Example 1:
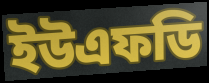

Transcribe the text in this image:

ইউএফডি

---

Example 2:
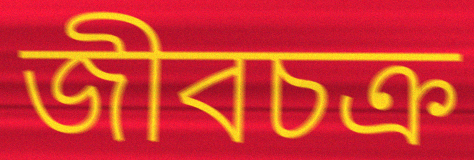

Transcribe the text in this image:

জীবচক্র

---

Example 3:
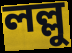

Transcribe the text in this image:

লল্লু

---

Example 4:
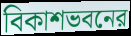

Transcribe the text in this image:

বিকাশভবনের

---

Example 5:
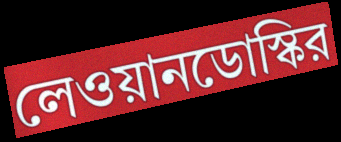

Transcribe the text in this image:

লেওয়ানডোস্কির